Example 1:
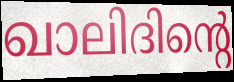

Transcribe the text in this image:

ഖാലിദിന്റെ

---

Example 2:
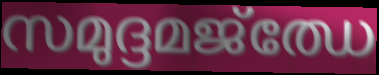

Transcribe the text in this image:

സമുദ്ദമജ്ഝേ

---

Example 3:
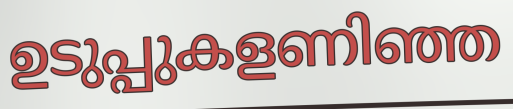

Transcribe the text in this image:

ഉടുപ്പുകളണിഞ്ഞ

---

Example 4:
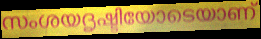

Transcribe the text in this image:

സംശയദൃഷ്ടിയോടെയാണ്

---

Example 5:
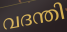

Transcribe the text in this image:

വദന്തി